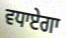
ਵਧਾਏਗਾ